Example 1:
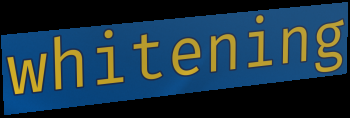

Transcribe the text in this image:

whitening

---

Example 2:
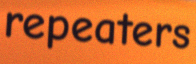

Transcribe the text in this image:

repeaters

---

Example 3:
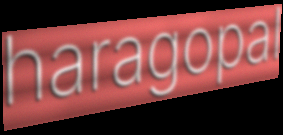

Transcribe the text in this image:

haragopal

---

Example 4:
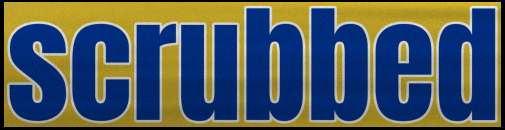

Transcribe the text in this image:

scrubbed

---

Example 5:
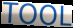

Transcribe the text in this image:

TOOL